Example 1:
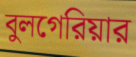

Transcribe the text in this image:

বুলগেরিয়ার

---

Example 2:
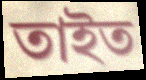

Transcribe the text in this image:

তাইত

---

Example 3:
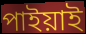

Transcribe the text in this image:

পাইয়াই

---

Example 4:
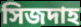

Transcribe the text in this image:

সিজদাহ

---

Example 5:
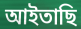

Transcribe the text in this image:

আইতাছি